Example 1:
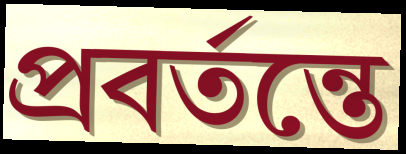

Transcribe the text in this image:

প্রবর্তন্তে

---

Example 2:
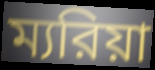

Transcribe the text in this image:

ম্যরিয়া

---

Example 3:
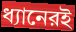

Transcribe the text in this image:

ধ্যানেরই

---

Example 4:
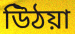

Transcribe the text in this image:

উিঠয়া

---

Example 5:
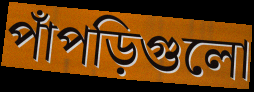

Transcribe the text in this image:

পাঁপড়িগুলো